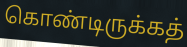
கொண்டிருக்கத்